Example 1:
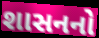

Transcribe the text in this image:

શાસનનો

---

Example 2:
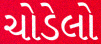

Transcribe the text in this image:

ચોડેલો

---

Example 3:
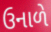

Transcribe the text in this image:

ઉનાળે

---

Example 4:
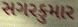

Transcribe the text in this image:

સગરકુમાર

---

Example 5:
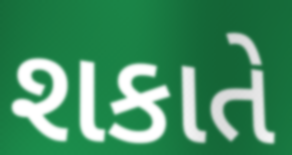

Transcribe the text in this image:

શકાતે